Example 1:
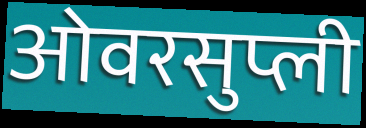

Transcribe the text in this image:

ओवरसुप्ली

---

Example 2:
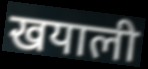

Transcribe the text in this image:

खयाली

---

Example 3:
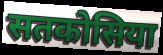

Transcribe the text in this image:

सतकोसिया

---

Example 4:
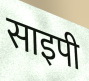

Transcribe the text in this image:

साइपी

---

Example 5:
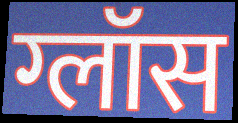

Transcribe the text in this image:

ग्लॉस